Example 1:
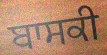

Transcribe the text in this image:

ਬਾਸਕੀ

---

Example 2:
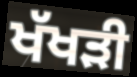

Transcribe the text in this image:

ਖੱਖੜੀ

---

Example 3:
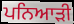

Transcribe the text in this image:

ਪਨਿਆੜੀ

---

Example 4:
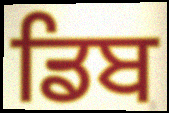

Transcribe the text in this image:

ਡਿਬ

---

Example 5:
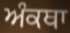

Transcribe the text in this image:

ਅੰਕਥਾ